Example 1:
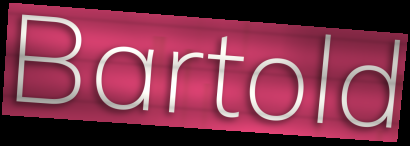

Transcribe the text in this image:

Bartold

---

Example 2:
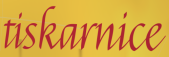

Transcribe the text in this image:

tiskarnice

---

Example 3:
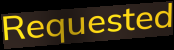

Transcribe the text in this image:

Requested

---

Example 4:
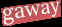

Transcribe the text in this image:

gaway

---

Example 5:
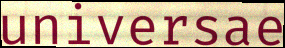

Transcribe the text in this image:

universae